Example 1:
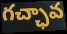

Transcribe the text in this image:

గచ్ఛావ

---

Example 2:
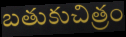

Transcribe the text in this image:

బతుకుచిత్రం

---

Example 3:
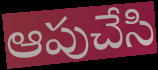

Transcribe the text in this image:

ఆపుచేసి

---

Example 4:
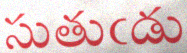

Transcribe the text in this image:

సుతుఁడు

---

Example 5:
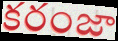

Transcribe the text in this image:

కరంజా